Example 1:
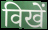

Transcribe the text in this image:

विखें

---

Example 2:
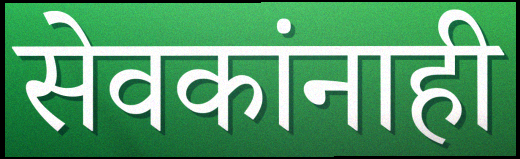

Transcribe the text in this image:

सेवकांनाही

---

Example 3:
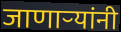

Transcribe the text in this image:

जाणाऱ्यांनी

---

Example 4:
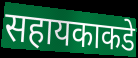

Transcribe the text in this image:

सहायकाकडे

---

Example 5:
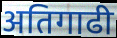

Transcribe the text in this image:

अतिगाढी